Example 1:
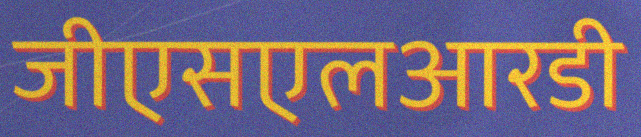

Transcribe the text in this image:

जीएसएलआरडी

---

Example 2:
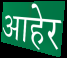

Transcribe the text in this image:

आहेर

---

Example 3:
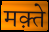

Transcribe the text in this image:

मक़्ते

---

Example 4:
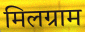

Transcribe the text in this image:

मिलग्राम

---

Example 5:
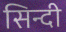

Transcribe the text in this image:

सिन्दी